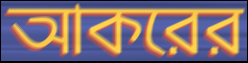
আকরের